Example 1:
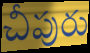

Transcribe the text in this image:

చీపురు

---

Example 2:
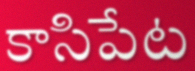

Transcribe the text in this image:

కాసిపేట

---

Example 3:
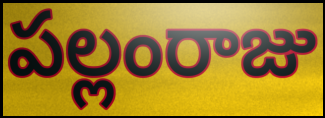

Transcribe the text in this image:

పల్లంరాజు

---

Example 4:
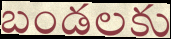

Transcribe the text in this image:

బండలకు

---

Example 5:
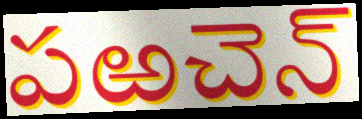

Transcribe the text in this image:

పఱచెన్